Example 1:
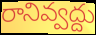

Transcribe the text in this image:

రానివ్వద్దు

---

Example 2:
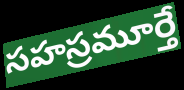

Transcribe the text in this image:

సహస్రమూర్తే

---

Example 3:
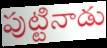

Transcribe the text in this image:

పుట్టినాడు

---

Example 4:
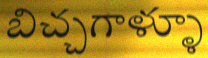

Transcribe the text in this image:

బిచ్చగాళ్ళూ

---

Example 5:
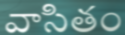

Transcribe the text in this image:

వాసితం